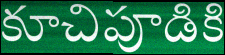
కూచిపూడికి